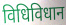
विधिविधान